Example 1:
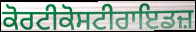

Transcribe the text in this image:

ਕੋਰਟੀਕੋਸਟੀਰਾਇਡਜ਼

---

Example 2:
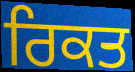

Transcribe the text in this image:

ਰਿਕਤ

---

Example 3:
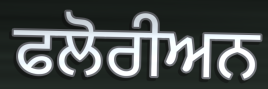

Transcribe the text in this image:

ਫਲੋਰੀਅਨ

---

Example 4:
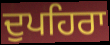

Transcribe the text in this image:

ਦੁਪਹਿਰਾ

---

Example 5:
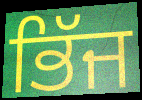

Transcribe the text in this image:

ਭਿੱਜ